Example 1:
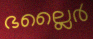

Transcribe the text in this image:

ഭല്ലൈർ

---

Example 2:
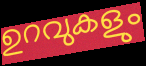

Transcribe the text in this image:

ഉറവുകളും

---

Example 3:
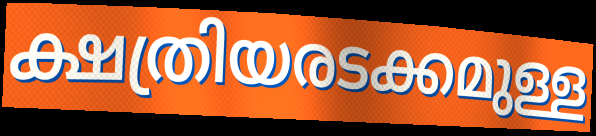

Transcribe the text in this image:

ക്ഷത്രിയരടക്കമുള്ള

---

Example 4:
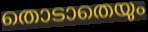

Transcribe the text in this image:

തൊടാതെയും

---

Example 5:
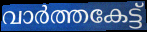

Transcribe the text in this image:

വാർത്തകേട്ട്